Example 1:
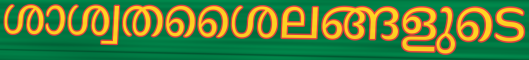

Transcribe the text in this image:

ശാശ്വതശൈലങ്ങളുടെ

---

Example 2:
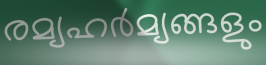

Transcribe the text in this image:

രമ്യഹർമ്യങ്ങളും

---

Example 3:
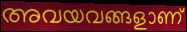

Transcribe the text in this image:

അവയവങ്ങളാണ്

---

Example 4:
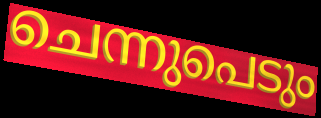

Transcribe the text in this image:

ചെന്നുപെടും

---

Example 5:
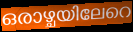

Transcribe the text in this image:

ഒരാഴ്ചയിലേറെ